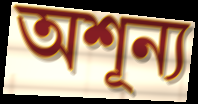
অশূন্য